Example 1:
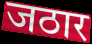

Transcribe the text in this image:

जठार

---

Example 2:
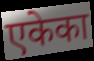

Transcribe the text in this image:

एकेका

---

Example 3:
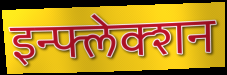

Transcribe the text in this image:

इन्फ्लेक्शन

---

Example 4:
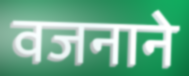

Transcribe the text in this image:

वजनाने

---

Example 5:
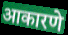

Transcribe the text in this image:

आकारणे